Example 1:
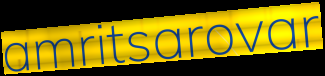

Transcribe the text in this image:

amritsarovar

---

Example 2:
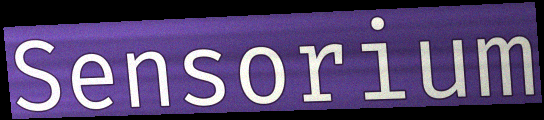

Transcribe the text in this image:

Sensorium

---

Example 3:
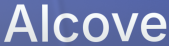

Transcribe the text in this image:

Alcove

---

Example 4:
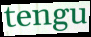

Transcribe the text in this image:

tengu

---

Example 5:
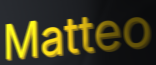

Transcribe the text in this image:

Matteo